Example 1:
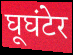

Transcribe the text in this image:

घूघंटेर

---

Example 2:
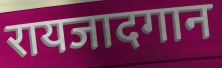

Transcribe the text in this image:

रायजादगान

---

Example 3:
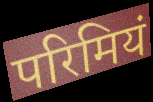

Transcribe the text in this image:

परिमियं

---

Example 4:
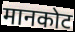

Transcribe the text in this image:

मानकोट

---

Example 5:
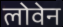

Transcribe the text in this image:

लोवेन